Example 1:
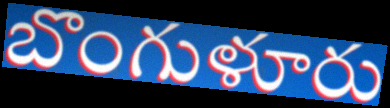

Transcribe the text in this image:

బొంగుళూరు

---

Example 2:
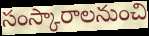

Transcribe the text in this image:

సంస్కారాలనుంచి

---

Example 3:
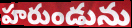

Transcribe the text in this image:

హరుండును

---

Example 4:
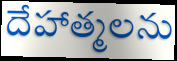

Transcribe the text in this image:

దేహాత్మలను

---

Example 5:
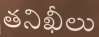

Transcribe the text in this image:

తనిఖీలు